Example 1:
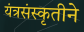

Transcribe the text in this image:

यंत्रसंस्कृतीने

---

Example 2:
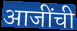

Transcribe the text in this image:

आजींची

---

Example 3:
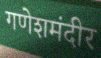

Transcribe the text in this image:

गणेशमंदीर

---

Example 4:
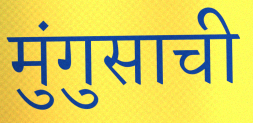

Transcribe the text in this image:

मुंगुसाची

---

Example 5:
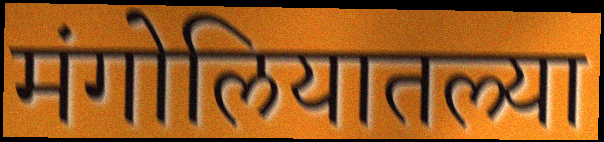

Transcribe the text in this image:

मंगोलियातल्या